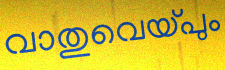
വാതുവെയ്പും